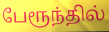
பேரூந்தில்